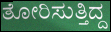
ತೋರಿಸುತ್ತಿದ್ದ